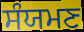
ਸੰਯਮਣ